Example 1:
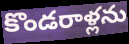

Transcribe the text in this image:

కొండరాళ్లను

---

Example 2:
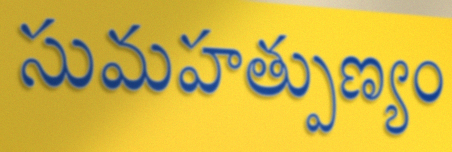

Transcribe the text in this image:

సుమహత్పుణ్యం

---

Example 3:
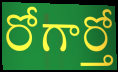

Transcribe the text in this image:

రోగార్తో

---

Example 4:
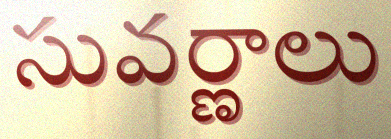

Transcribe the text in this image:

సువర్ణాలు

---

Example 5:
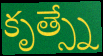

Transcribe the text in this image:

కృత్స్నే